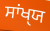
ਸਾਂਖੑਯ